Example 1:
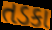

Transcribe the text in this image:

તડકા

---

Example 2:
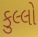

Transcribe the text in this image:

કુલ્લો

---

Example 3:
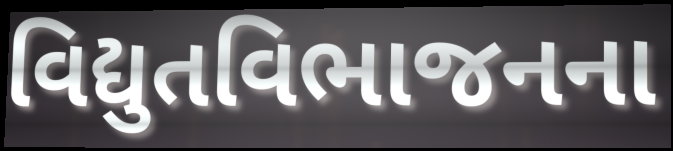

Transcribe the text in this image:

વિદ્યુતવિભાજનના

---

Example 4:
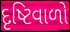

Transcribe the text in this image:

દૃષ્ટિવાળો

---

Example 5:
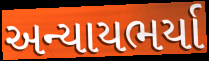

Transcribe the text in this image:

અન્યાયભર્યા